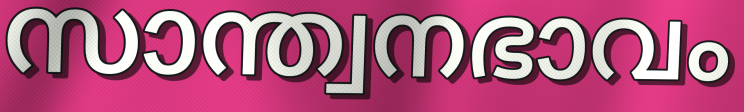
സാന്ത്വനഭാവം